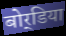
बोर्डिया